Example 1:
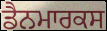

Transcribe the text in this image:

ਡੈਨਮਾਰਕਸ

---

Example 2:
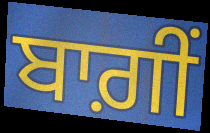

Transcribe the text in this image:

ਬਾਗ਼ੀਂ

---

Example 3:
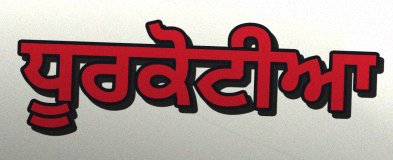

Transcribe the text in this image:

ਧੂਰਕੋਟੀਆ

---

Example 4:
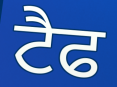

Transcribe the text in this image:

ਟੈਫ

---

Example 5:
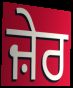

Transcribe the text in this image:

ਜ਼ੇਰ